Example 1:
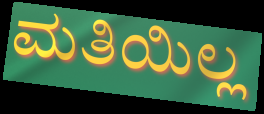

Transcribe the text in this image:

ಮತಿಯಿಲ್ಲ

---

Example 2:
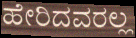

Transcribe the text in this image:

ಹೇರಿದವರಲ್ಲ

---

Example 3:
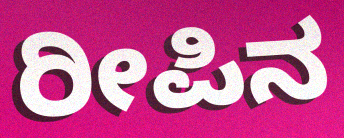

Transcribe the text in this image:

ರೀಪಿನ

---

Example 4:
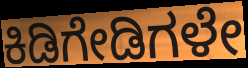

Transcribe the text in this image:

ಕಿಡಿಗೇಡಿಗಳೇ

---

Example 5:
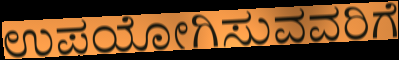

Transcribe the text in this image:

ಉಪಯೋಗಿಸುವವರಿಗೆ